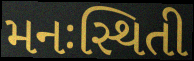
મનઃસ્થિતી